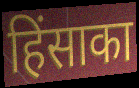
हिंसाका